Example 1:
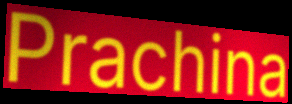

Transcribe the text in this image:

Prachina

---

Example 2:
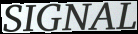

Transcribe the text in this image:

SIGNAL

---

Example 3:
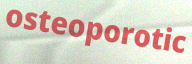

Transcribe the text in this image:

osteoporotic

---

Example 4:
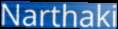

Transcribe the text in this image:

Narthaki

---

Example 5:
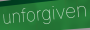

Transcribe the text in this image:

unforgiven